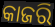
କାଜରି